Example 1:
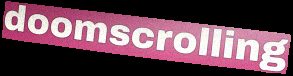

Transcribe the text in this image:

doomscrolling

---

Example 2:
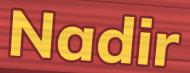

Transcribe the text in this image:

Nadir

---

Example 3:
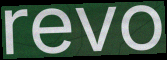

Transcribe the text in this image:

revo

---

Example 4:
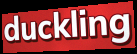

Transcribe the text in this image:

duckling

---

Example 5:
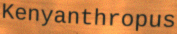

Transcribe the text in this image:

Kenyanthropus